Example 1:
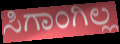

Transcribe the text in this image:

ಸಿಗಾಂಗಿಲ್ಲ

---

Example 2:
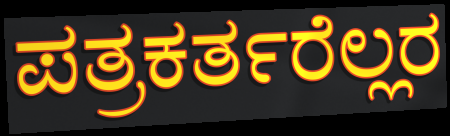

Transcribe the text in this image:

ಪತ್ರಕರ್ತರೆಲ್ಲರ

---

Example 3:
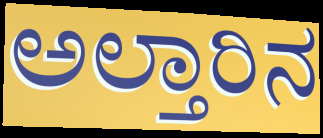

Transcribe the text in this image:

ಅಲ್ತಾರಿನ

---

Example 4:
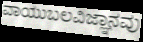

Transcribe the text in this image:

ವಾಯುಬಲವಿಜ್ಞಾನವು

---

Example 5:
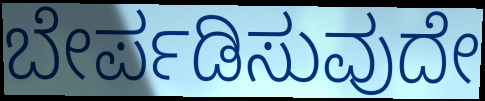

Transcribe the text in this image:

ಬೇರ್ಪಡಿಸುವುದೇ